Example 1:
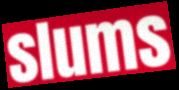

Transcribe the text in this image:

slums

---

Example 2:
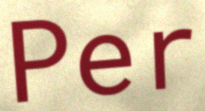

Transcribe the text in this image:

Per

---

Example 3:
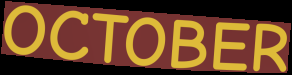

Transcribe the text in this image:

OCTOBER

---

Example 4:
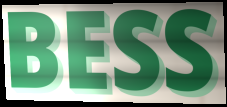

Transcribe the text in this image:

BESS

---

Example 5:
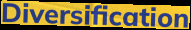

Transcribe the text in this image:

Diversification